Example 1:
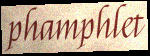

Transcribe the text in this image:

phamphlet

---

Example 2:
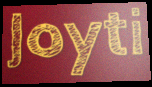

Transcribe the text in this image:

Joyti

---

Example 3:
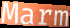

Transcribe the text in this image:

Marm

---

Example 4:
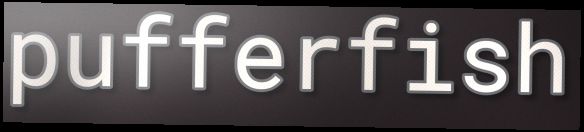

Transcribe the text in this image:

pufferfish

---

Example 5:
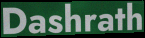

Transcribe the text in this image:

Dashrath